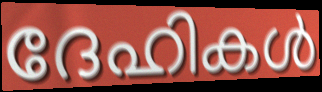
ദേഹികൾ